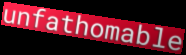
unfathomable